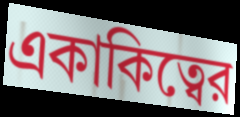
একাকিত্বের